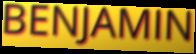
BENJAMIN